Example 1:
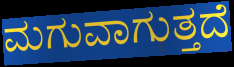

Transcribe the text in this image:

ಮಗುವಾಗುತ್ತದೆ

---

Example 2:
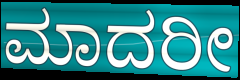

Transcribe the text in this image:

ಮಾದರೀ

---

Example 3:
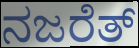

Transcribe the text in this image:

ನಜರೆತ್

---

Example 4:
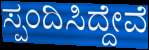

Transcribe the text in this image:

ಸ್ಪಂದಿಸಿದ್ದೇವೆ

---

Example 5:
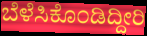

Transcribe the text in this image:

ಬೆಳೆಸಿಕೊಂಡಿದ್ದೀರಿ